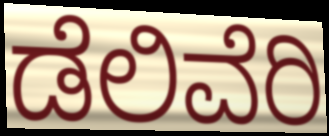
ಡೆಲಿವೆರಿ